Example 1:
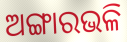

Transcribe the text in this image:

ଅଙ୍ଗାରଭଳି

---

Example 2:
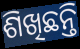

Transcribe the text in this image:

ଶିଖିଛନ୍ତି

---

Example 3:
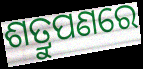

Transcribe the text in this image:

ଶତ୍ରୁପଣରେ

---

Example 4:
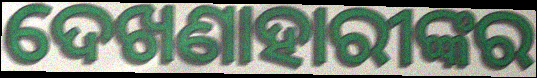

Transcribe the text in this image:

ଦେଖଣାହାରୀଙ୍କର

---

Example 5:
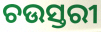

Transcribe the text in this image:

ଚଉସ୍ତରୀ